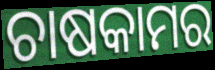
ଚାଷକାମର